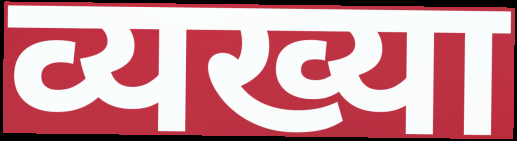
व्यख्या